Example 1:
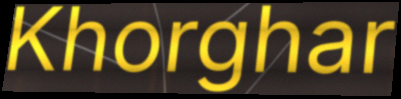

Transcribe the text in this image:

Khorghar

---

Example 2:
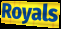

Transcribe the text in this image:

Royals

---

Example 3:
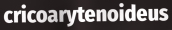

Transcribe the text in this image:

cricoarytenoideus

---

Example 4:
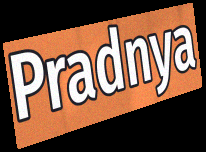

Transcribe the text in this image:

Pradnya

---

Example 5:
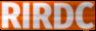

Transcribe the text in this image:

RIRDC